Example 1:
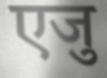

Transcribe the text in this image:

एजु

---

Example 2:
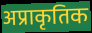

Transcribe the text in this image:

अप्राकृतिक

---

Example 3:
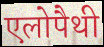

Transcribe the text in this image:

एलोपैथी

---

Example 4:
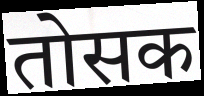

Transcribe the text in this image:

तोसक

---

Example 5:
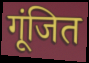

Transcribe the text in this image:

गूंजित